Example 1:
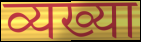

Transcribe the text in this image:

व्यख्या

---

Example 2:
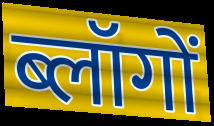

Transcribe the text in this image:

ब्‍लॉगों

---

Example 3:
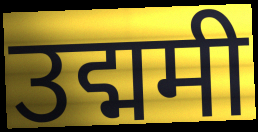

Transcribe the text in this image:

उद्ममी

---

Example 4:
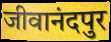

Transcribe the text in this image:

जीवानंदपुर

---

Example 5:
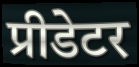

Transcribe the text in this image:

प्रीडेटर